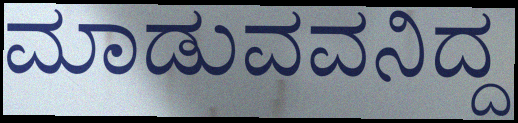
ಮಾಡುವವನಿದ್ದ